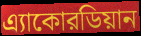
এ্যাকোরডিয়ান